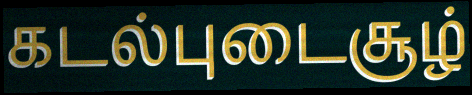
கடல்புடைசூழ்